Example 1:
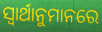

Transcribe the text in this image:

ସ୍ୱାର୍ଥାନୁମାନରେ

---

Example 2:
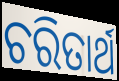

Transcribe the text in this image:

ଚରିତାର୍ଥ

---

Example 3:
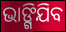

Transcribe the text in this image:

ଭାଙ୍ଗିଯିବ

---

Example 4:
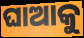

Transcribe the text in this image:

ଘାଆକୁ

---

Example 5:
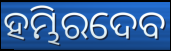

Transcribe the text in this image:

ହମ୍ଭିରଦେବ